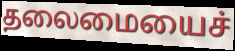
தலைமையைச்